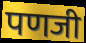
पणजी